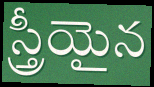
స్త్రీయైన